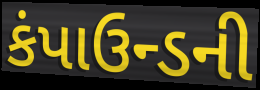
કંપાઉન્ડની